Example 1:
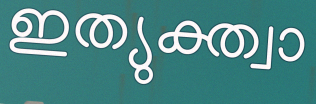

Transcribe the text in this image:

ഇത്യുക്ത്വാ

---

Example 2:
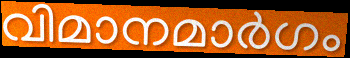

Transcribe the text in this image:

വിമാനമാർഗം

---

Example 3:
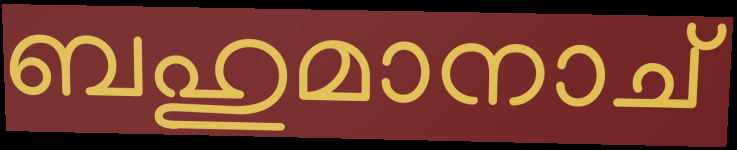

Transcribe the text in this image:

ബഹുമാനാച്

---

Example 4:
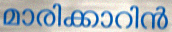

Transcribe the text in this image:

മാരിക്കാറിൻ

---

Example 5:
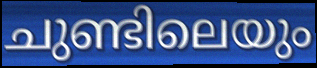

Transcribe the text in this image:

ചുണ്ടിലെയും